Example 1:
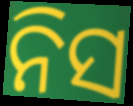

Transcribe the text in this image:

ନିସ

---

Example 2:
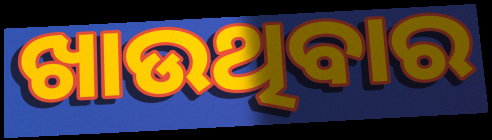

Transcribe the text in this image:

ଖାଉଥିବାର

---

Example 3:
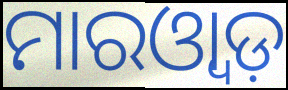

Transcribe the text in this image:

ମାରଓ୍ୱାଡ଼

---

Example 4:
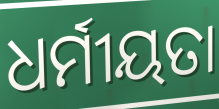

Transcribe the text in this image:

ଧର୍ମୀୟତା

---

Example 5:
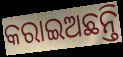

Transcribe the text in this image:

କରାଇଅଛନ୍ତି